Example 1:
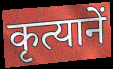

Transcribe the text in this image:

कृत्यानें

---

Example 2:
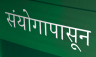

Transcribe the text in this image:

संयोगापासून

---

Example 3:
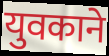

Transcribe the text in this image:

युवकाने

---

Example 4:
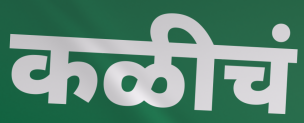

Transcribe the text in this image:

कळीचं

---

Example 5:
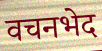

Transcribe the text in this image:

वचनभेद